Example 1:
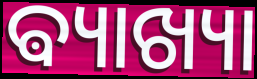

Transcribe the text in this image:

ଵ୍ୟାଖ୍ୟା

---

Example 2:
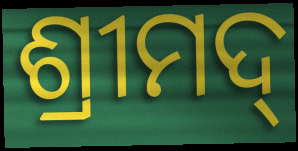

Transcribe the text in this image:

ଶ୍ରୀମଦ୍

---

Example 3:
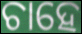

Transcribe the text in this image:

ଚାହେ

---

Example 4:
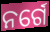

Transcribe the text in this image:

ନର୍ଗେ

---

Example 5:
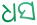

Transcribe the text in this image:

ଧସ